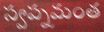
స్వప్నమంత